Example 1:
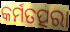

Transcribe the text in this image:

କର୍ମତତ୍ପରା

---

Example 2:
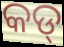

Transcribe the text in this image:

କଡ୍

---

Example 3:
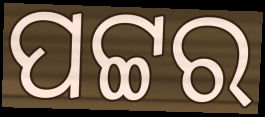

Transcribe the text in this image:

ପଟ୍ଟର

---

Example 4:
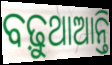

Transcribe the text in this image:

ବଢ଼ୁଥାଆନ୍ତି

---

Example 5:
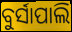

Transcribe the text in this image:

ବୁର୍ସାପାଲି